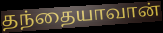
தந்தையாவான்